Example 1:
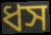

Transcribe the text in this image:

ধস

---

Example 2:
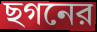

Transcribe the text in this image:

ছগনের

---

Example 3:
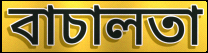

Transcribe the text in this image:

বাচালতা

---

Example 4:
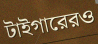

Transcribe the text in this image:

টাইগারেরও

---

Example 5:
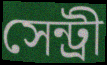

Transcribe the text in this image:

সেন্ট্রী